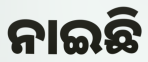
ନାଇଛି